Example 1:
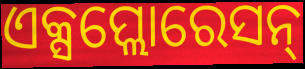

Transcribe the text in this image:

ଏକ୍ସପ୍ଲୋରେସନ୍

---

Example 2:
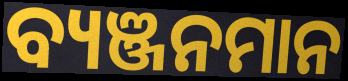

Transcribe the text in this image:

ବ୍ୟଞ୍ଜନମାନ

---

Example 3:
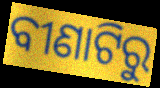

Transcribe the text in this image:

ବୀଣାଟିରୁ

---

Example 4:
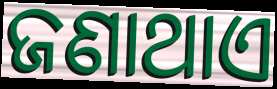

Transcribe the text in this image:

ଜଣାଥାଏ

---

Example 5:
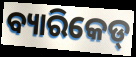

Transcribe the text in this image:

ବ୍ୟାରିକେଡ୍